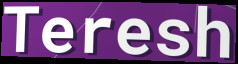
Teresh